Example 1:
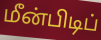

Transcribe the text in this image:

மீன்பிடிப்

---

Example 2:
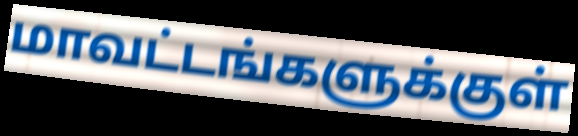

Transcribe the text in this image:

மாவட்டங்களுக்குள்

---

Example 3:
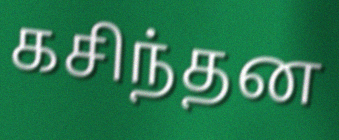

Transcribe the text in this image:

கசிந்தன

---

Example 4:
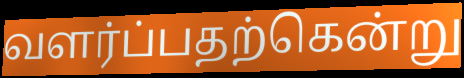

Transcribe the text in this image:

வளர்ப்பதற்கென்று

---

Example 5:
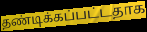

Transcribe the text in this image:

தண்டிக்கப்பட்டதாக